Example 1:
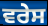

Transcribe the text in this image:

ਵਰੇਸ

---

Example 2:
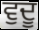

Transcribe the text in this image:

ਵੁਦੂ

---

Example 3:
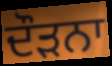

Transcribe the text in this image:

ਦੌੜਨਾ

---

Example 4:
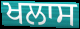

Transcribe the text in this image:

ਖਲਾਸ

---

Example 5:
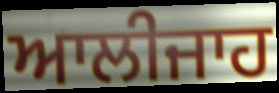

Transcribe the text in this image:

ਆਲੀਜਾਹ